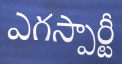
ఎగస్పార్టీ